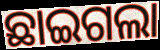
ଛାଇଗଲା